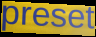
preset